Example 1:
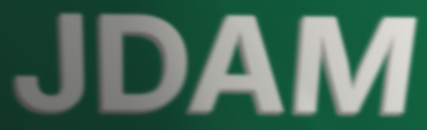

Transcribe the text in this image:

JDAM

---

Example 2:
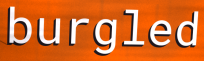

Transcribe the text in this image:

burgled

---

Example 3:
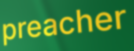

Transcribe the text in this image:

preacher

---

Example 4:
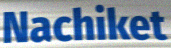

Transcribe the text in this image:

Nachiket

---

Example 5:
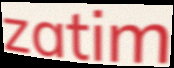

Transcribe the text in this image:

zatim